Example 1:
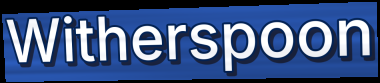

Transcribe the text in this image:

Witherspoon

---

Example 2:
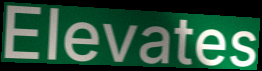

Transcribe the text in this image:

Elevates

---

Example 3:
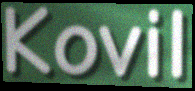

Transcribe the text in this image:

Kovil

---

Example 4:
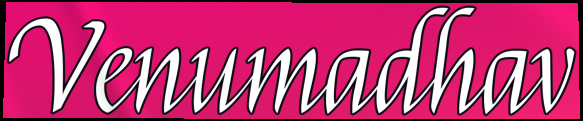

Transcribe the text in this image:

Venumadhav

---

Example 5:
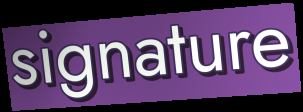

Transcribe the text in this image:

signature